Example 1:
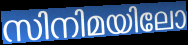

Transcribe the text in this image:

സിനിമയിലോ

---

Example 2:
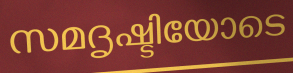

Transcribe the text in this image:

സമദൃഷ്ടിയോടെ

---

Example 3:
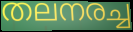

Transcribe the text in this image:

തലനരച്ച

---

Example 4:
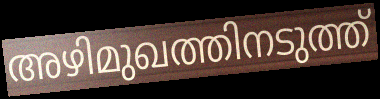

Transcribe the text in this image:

അഴിമുഖത്തിനടുത്ത്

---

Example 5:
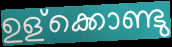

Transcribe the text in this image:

ഉള്ക്കൊണ്ടു